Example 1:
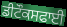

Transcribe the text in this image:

ਡੀਟੌਕਸਫਾਈ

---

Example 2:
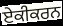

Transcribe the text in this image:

ਏਕੀਕਰਨ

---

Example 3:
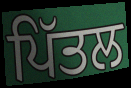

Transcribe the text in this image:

ਪਿੱਤਲ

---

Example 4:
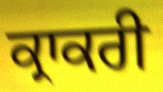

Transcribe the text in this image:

ਕ੍ਰਾਕਰੀ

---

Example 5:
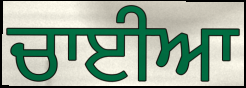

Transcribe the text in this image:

ਚਾਈਆ